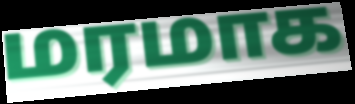
மரமாக